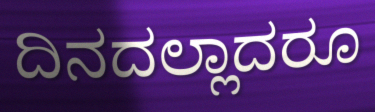
ದಿನದಲ್ಲಾದರೂ